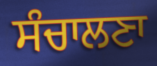
ਸੰਚਾਲਣਾ